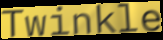
Twinkle